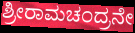
ಶ್ರೀರಾಮಚಂದ್ರನೇ